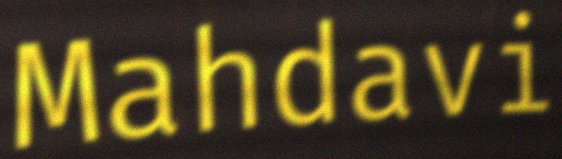
Mahdavi